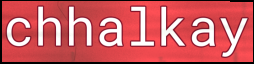
chhalkay